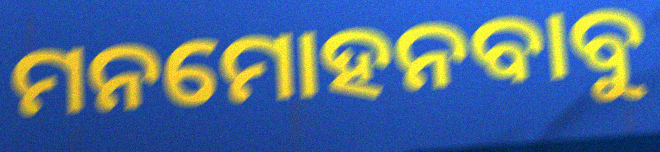
ମନମୋହନବାବୁ